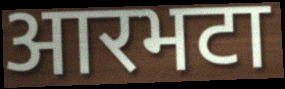
आरभटा